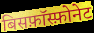
बिसफ़ॉस्फ़ोनेट